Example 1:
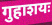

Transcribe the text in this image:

गुहाशयः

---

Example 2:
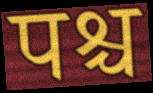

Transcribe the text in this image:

पश्च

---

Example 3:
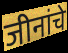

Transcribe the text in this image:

जीनांचे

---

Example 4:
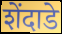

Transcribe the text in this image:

शेंदाडे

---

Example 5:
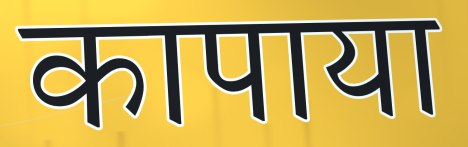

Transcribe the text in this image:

कापाया